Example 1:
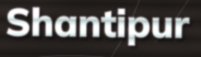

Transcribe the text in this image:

Shantipur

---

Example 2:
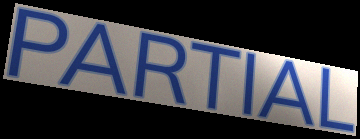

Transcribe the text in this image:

PARTIAL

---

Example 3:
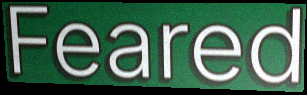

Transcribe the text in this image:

Feared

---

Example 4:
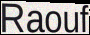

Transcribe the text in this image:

Raouf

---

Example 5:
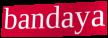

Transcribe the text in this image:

bandaya